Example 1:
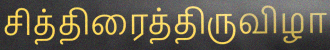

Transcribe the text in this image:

சித்திரைத்திருவிழா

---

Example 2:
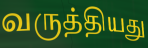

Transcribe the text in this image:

வருத்தியது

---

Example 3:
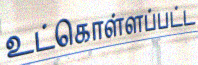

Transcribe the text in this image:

உட்கொள்ளப்பட்ட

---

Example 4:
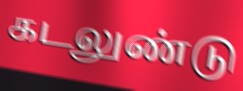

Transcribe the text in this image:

கடலுண்டு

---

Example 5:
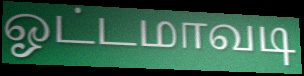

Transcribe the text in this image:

ஓட்டமாவடி